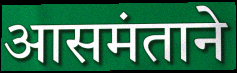
आसमंताने